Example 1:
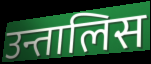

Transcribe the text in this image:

उन्तालिस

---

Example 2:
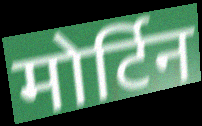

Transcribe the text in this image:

मोर्टिन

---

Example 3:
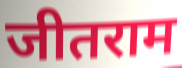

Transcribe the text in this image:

जीतराम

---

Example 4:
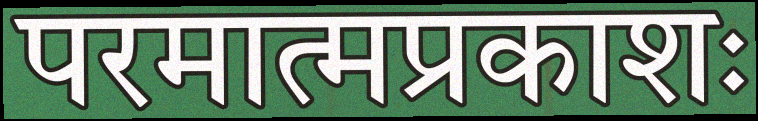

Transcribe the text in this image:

परमात्मप्रकाशः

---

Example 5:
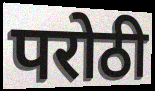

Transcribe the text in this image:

परोठी